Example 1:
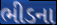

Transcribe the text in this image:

ભીડના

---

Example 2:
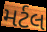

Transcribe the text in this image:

મર્ટલ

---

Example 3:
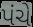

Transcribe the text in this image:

પંચે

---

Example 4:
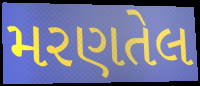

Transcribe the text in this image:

મરણતેલ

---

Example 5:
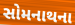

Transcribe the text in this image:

સોમનાથના